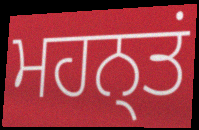
ਮਹਨ੍ਤਂ